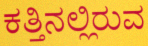
ಕತ್ತಿನಲ್ಲಿರುವ